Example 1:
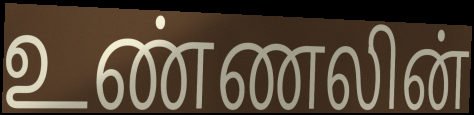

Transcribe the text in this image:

உண்ணலின்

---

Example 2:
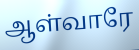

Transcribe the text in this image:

ஆள்வாரே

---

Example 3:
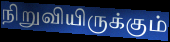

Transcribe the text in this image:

நிறுவியிருக்கும்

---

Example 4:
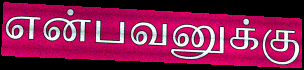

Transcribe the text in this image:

என்பவனுக்கு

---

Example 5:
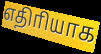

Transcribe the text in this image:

எதிரியாக